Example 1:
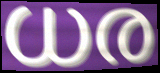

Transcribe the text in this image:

ധര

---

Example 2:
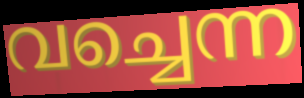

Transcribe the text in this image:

വച്ചെന്ന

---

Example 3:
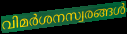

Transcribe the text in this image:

വിമർശനസ്വരങ്ങൾ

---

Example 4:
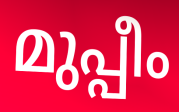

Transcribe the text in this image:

മുപ്പീം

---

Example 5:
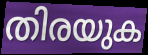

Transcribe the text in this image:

തിരയുക